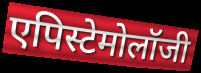
एपिस्टेमोलॉजी